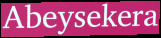
Abeysekera